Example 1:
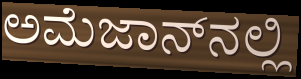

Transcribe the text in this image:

ಅಮೆಜಾನ್‌ನಲ್ಲಿ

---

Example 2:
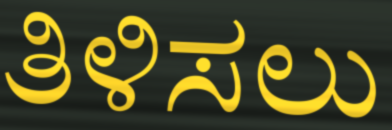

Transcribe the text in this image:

ತಿಳಿಸಲು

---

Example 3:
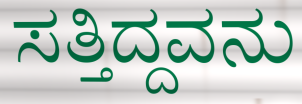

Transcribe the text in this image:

ಸತ್ತಿದ್ದವನು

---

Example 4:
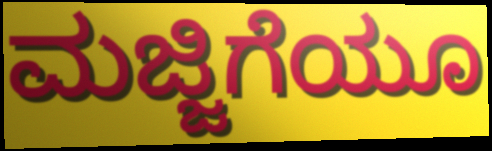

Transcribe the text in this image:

ಮಜ್ಜಿಗೆಯೂ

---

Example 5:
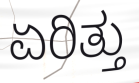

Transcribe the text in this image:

ಏರಿತ್ತು